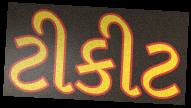
ટીકીટ